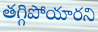
తగ్గిపోయారని